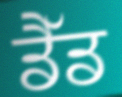
ਡੈੱਡ